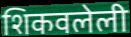
शिकवलेली